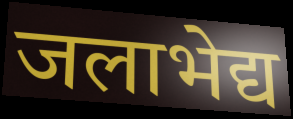
जलाभेद्य